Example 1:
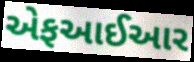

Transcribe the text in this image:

એફઆઈઆર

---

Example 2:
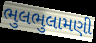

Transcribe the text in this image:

ભુલભુલામણી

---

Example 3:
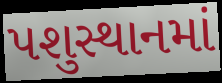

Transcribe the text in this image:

પશુસ્થાનમાં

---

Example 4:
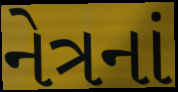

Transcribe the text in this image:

નેત્રનાં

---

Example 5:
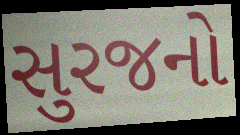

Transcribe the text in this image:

સુરજનો